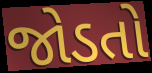
જોડતો